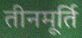
तीनमूर्ति